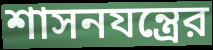
শাসনযন্ত্রের